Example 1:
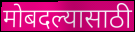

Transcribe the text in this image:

मोबदल्यासाठी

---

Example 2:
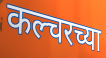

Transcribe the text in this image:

कल्चरच्या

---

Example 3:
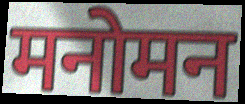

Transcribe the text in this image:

मनोमन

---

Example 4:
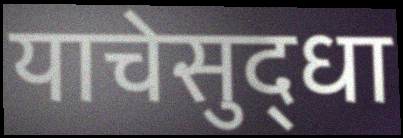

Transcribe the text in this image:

याचेसुद्धा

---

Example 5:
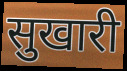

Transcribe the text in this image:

सुखारी